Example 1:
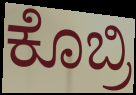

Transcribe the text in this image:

ಕೊಬ್ರಿ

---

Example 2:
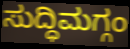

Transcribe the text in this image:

ಸುದ್ಧಿಮಗ್ಗಂ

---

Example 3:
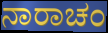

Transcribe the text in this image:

ನಾರಾಚಂ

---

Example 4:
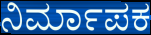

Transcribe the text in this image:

ನಿರ್ಮಾಪಕ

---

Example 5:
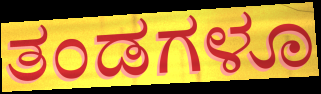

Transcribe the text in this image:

ತಂಡಗಳೂ